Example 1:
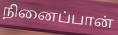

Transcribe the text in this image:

நினைப்பான்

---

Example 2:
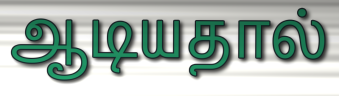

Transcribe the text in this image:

ஆடியதால்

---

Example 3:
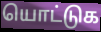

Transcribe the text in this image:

யொட்டுக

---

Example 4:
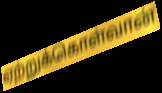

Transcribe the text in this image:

ஏற்றுக்கொள்வான்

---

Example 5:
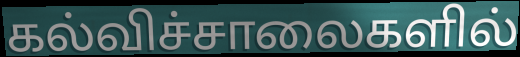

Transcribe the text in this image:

கல்விச்சாலைகளில்